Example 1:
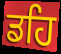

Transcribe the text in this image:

ਡਹਿ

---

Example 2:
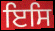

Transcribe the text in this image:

ਇਸਿ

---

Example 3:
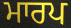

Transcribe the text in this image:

ਮਾਰਪ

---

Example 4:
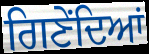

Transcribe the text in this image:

ਗਿਣੇਂਦਿਆਂ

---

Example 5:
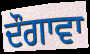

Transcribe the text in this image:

ਦੌਗਾਵਾ